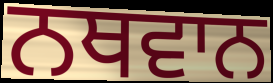
ਨਥਵਾਨ